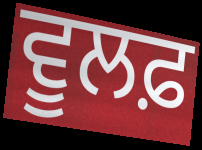
ਵੂਲਫ਼